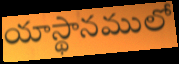
యాస్థానములో